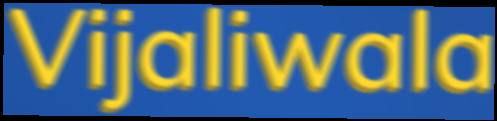
Vijaliwala